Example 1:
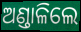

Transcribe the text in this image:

ଅଣ୍ଡାଳିଲେ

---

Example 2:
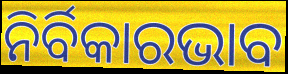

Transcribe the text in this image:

ନିର୍ବିକାରଭାବ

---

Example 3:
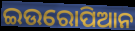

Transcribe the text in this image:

ଇଉରୋପିଆନ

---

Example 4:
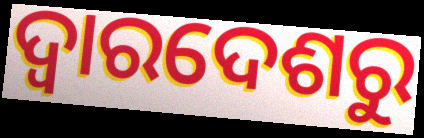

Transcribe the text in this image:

ଦ୍ଵାରଦେଶରୁ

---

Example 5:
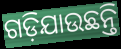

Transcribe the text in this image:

ଗଡ଼ିଯାଉଛନ୍ତି